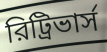
রিট্রিভার্স